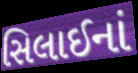
સિલાઈનાં